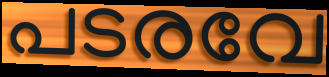
പടരവേ